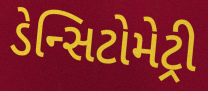
ડેન્સિટોમેટ્રી